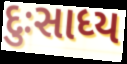
દુઃસાધ્ય